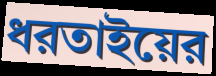
ধরতাইয়ের